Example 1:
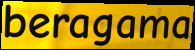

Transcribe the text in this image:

beragama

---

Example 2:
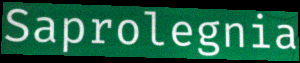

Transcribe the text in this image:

Saprolegnia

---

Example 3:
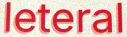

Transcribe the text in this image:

leteral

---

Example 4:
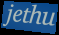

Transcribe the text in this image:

jethu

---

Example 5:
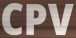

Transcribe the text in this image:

CPV